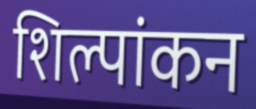
शिल्पांकन